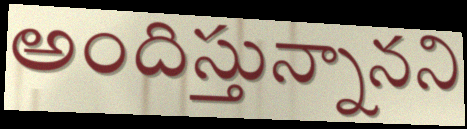
అందిస్తున్నానని